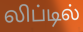
லிப்டில்